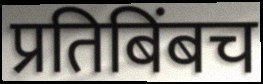
प्रतिबिंबच